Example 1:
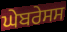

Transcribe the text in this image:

ਘੇਬਰੇਸਸ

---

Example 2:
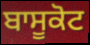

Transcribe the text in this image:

ਬਾਸੂਕੋਟ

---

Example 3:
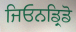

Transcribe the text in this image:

ਜਿਓਨਡ੍ਰਿਡੋ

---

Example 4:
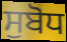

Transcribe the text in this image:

ਸੁਬੋਧ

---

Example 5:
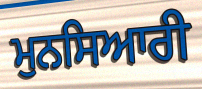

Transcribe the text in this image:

ਮੁਨਸਿਆਰੀ